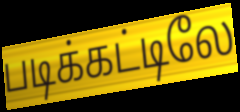
படிக்கட்டிலே